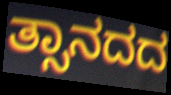
ತ್ಸಾನದದ